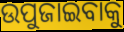
ଉପୁଜାଇବାକୁ